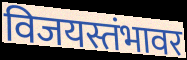
विजयस्तंभावर